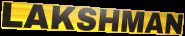
LAKSHMAN